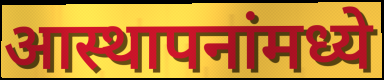
आस्थापनांमध्ये